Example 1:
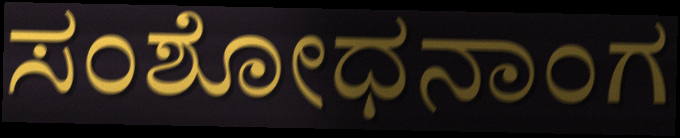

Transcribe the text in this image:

ಸಂಶೋಧನಾಂಗ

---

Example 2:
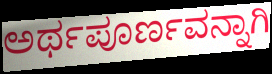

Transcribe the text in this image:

ಅರ್ಥಪೂರ್ಣವನ್ನಾಗಿ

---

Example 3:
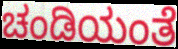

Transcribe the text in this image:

ಚಂಡಿಯಂತೆ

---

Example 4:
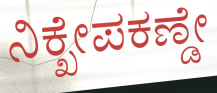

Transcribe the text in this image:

ನಿಕ್ಖೇಪಕಣ್ಡೇ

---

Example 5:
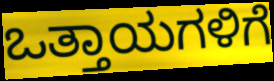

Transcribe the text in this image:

ಒತ್ತಾಯಗಳಿಗೆ